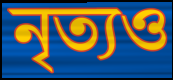
নৃত্যও